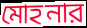
মোহনার